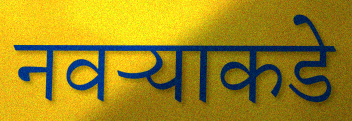
नवऱ्याकडे